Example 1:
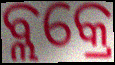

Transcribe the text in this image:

ବ୍ଲକ୍ରେ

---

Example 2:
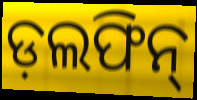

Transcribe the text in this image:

ଡ଼ଲଫିନ୍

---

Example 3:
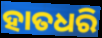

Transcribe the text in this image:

ହାତଧରି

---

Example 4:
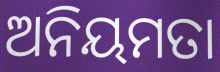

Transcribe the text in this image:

ଅନିୟମତା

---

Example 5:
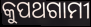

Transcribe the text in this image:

କୁପଥଗାମୀ